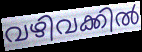
വഴിവക്കിൽ